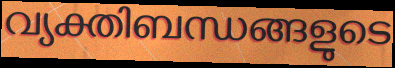
വ്യക്തിബന്ധങ്ങളുടെ